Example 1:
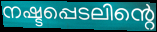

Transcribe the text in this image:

നഷ്ടപ്പെടലിന്റെ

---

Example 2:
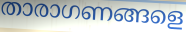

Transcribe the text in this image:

താരാഗണങ്ങളെ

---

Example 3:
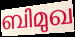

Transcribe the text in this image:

ബിമുഖ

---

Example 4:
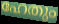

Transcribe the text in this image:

ഹേതും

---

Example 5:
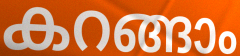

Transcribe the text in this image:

കറങ്ങാം